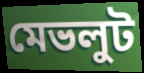
মেভলুট